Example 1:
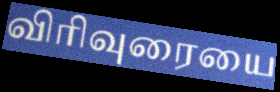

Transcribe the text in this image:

விரிவுரையை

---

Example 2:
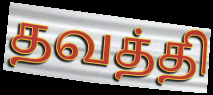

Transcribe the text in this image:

தவத்தி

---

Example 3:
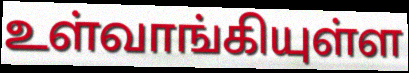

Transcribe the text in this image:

உள்வாங்கியுள்ள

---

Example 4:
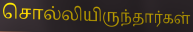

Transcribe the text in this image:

சொல்லியிருந்தார்கள்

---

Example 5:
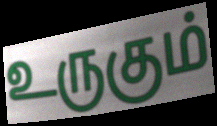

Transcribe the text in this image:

உருகும்